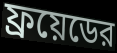
ফ্রয়েডের